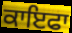
ਕਾਇਫਾ